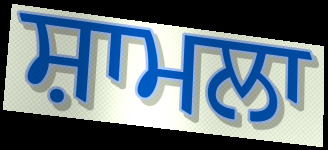
ਸ਼ਾਮਲਾ